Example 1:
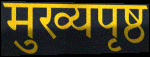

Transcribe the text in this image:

मुख्यपृष्ठ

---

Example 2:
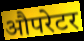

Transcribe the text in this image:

औपरेटर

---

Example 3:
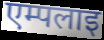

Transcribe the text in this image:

एम्पलाइ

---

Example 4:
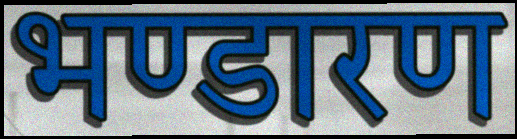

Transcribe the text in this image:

भण्डारण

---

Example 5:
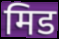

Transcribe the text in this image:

मिड